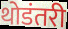
थोडंतरी